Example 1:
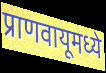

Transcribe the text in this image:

प्राणवायूमध्ये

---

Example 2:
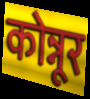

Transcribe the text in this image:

कोन्नूर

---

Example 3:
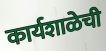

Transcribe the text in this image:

कार्यशाळेची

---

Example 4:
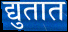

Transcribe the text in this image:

द्युतात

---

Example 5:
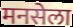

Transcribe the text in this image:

मनसेला